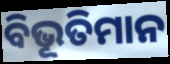
ବିଭୂତିମାନ